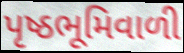
પૃષ્ઠભૂમિવાળી